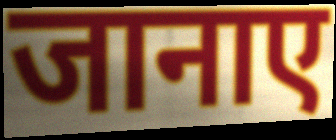
जानाए